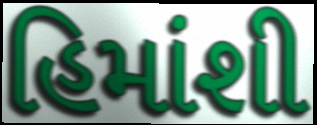
હિમાંશી